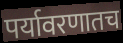
पर्यावरणातच